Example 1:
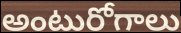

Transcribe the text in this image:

అంటురోగాలు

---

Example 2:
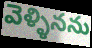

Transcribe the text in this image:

వెళ్ళినను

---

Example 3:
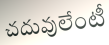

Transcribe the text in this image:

చదువులేంటీ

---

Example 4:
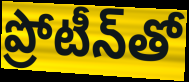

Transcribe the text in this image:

ప్రోటీన్‌తో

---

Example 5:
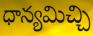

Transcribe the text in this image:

ధాన్యమిచ్చి